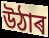
উঠাৰ